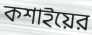
কশাইয়ের